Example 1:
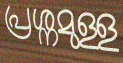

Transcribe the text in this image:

പ്രശ്നമുള്ള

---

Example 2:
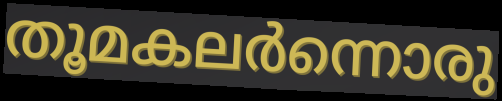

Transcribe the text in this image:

തൂമകലർന്നൊരു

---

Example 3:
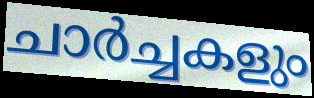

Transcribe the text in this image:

ചാർച്ചകളും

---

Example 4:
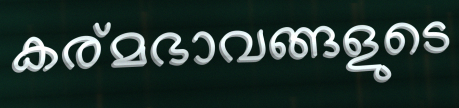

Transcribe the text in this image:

കര്മഭാവങ്ങളുടെ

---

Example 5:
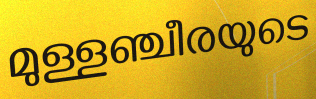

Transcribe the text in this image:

മുള്ളഞ്ചീരയുടെ